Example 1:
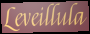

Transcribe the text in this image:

Leveillula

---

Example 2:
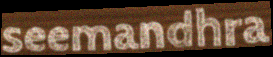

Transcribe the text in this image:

seemandhra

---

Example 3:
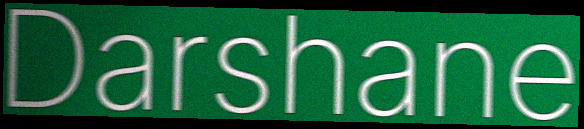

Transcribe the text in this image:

Darshane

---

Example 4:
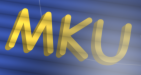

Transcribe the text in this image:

MKU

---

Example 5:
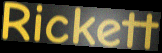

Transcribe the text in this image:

Rickett